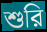
শুরি